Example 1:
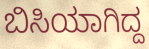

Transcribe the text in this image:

ಬಿಸಿಯಾಗಿದ್ದ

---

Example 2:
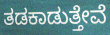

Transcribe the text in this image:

ತಡಕಾಡುತ್ತೇವೆ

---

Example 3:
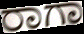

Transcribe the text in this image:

ರಾಗಾ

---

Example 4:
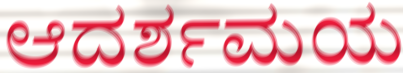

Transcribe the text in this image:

ಆದರ್ಶಮಯ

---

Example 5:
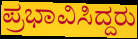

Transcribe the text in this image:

ಪ್ರಭಾವಿಸಿದ್ದರು